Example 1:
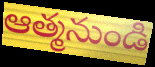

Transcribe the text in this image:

ఆత్మనుండి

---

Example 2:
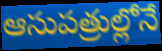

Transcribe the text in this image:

ఆసుపత్రుల్లోనే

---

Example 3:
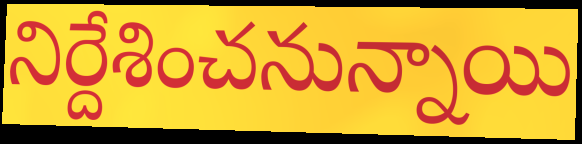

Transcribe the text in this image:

నిర్దేశించనున్నాయి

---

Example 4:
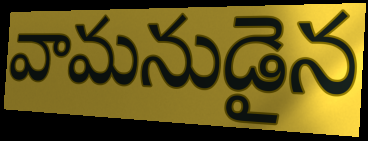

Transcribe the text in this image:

వామనుడైన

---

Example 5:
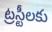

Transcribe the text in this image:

ట్రస్టీలకు